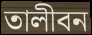
তালীবন